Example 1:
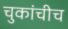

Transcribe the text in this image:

चुकांचीच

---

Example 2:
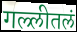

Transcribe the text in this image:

गल्लीतलं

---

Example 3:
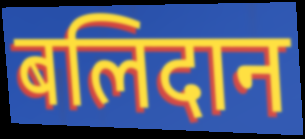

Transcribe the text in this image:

बलिदान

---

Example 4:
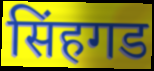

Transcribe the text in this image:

सिंहगड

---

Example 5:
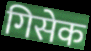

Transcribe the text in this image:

गिसेक